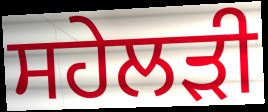
ਸਹੇਲੜੀ